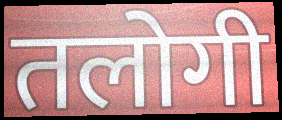
तलोगी